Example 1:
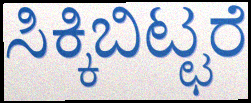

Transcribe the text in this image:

ಸಿಕ್ಕಿಬಿಟ್ಟರೆ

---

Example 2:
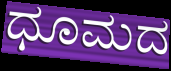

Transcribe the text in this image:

ಧೂಮದ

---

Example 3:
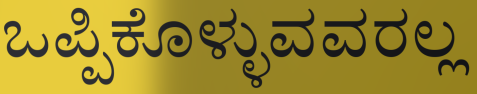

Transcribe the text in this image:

ಒಪ್ಪಿಕೊಳ್ಳುವವರಲ್ಲ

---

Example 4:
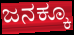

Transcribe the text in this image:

ಜನಕ್ಕೂ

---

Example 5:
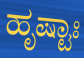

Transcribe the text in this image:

ಹೃಷ್ಟಾಃ